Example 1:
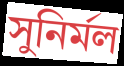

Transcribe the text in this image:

সুনির্মল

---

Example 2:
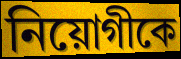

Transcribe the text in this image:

নিয়োগীকে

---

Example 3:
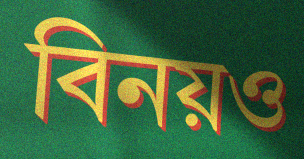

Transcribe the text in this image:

বিনয়ও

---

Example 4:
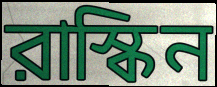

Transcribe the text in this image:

রাস্কিন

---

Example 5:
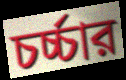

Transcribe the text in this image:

চর্চ্চার